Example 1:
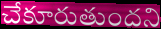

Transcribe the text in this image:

చేకూరుతుందని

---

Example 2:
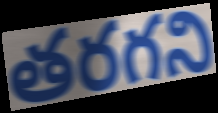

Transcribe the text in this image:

తరగని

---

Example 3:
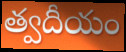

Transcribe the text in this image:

త్వదీయం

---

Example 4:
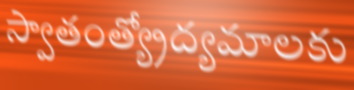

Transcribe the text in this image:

స్వాతంత్య్రోద్యమాలకు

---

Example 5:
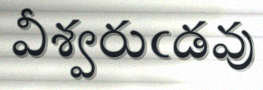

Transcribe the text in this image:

వీశ్వరుఁడవు